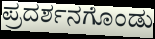
ಪ್ರದರ್ಶನಗೊಂಡು